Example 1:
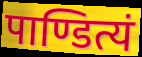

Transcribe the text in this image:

पाण्डित्यं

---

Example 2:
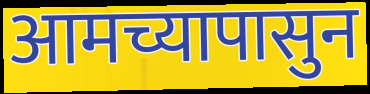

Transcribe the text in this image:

आमच्यापासुन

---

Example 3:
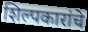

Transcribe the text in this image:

शिल्पकारांचे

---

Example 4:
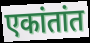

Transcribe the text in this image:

एकांतांत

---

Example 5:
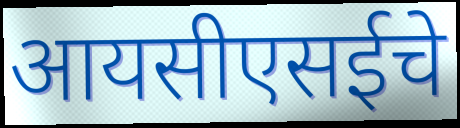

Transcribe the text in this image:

आयसीएसईचे